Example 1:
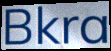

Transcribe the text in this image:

Bkra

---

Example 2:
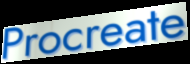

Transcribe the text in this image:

Procreate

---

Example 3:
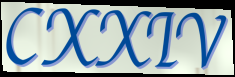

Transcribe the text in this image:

CXXIV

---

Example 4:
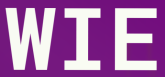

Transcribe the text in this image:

WIE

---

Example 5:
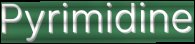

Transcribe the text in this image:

Pyrimidine